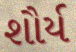
શૌર્ય